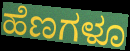
ಹೆಣಗಳೂ